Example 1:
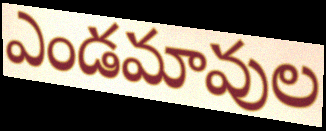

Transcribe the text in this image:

ఎండమావుల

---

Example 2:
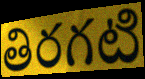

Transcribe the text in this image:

తిరగటి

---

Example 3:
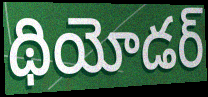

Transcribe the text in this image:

థియోడర్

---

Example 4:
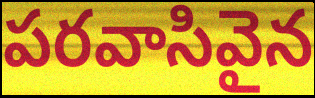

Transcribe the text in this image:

పరవాసివైన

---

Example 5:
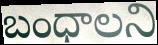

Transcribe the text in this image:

బంధాలని